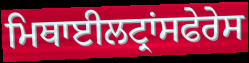
ਮਿਥਾਈਲਟ੍ਰਾਂਸਫੇਰੇਸ